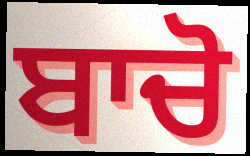
ਬਾਚੋ